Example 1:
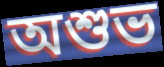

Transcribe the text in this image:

অশুভ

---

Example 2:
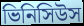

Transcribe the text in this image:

ভিনিসিউস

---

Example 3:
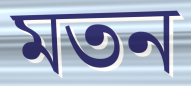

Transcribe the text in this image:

মতন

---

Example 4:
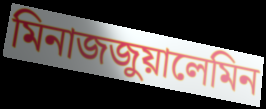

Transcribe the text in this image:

মিনাজজুয়ালেমিন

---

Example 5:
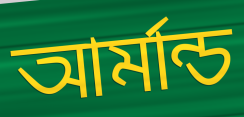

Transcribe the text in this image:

আর্মান্ড